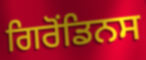
ਗਿਰੋਂਡਿਨਸ